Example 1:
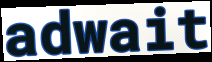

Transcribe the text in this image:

adwait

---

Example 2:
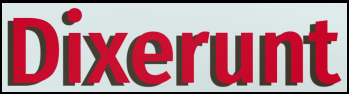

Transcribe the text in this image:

Dixerunt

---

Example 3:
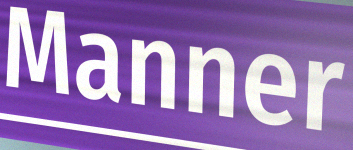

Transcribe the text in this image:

Manner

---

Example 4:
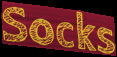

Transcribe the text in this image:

Socks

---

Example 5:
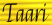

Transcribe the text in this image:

Taari